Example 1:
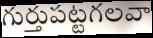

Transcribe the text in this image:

గుర్తుపట్టగలవా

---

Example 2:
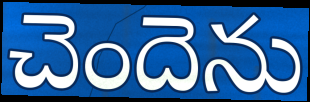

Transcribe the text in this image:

చెందెను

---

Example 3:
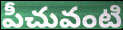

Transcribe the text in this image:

పీచువంటి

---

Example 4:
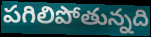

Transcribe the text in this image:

పగిలిపోతున్నది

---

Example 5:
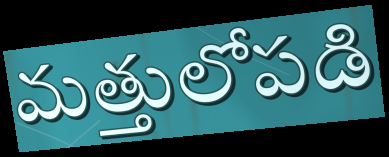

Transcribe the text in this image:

మత్తులోపడి